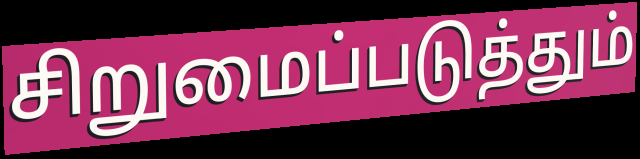
சிறுமைப்படுத்தும்